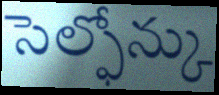
సెల్ఫోన్కు